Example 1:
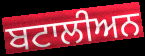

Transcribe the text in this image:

ਬਟਾਲੀਅਨ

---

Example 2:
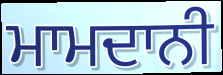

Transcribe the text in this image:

ਮਾਮਦਾਨੀ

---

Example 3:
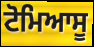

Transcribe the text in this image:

ਟੋਮਿਆਸੂ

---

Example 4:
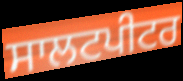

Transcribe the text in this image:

ਸਾਲਟਪੀਟਰ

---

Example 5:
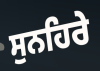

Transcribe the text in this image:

ਸੁਨਹਿਰੇ